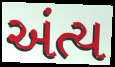
અંત્ય